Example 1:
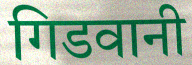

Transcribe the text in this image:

गिडवानी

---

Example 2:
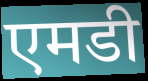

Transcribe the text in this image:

एमडी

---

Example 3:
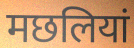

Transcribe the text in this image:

मछलियां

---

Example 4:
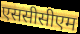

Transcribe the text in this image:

एससीसीएम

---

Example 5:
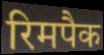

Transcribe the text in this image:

रिमपैक